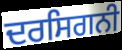
ਦਰਸਿਗਨੀ